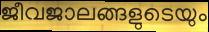
ജീവജാലങ്ങളുടെയും